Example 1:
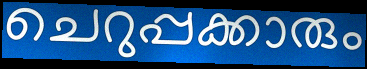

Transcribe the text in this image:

ചെറുപ്പക്കാരും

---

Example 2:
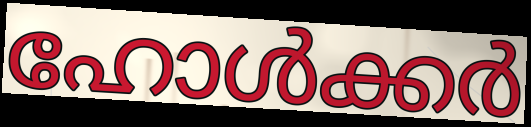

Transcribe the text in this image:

ഹോൾക്കർ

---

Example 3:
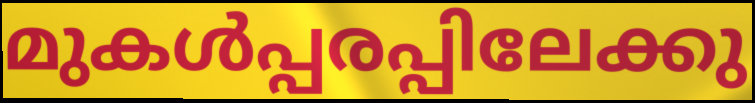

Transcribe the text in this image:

മുകൾപ്പരപ്പിലേക്കു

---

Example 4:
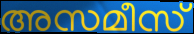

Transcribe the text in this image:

അസമീസ്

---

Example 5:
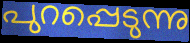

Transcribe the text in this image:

പുറപ്പെടുന്നു